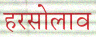
हरसोलाव